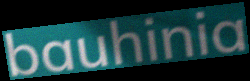
bauhinia